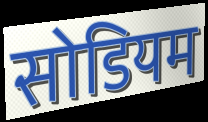
सोडियम